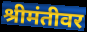
श्रीमंतीवर